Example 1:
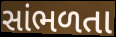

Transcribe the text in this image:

સાંભળતા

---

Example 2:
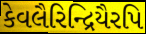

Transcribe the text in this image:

કેવલૈરિન્દ્રિયૈરપિ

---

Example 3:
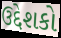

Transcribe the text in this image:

ઉદ્દેશકો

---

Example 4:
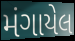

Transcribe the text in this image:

મંગાયેલ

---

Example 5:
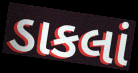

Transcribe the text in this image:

ડાકલાં